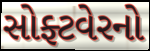
સોફ્ટવેરનો